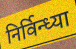
निर्विन्ध्या